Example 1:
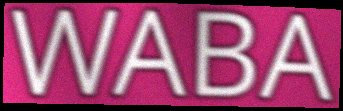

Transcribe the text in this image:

WABA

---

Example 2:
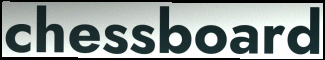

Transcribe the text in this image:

chessboard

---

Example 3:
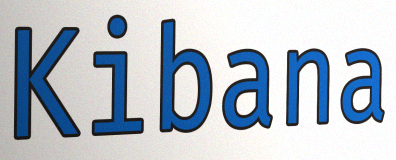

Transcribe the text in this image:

Kibana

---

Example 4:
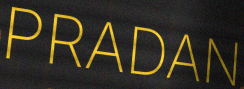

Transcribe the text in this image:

PRADAN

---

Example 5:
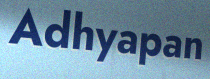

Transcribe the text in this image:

Adhyapan